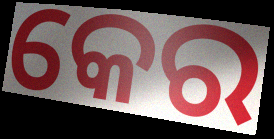
କେର